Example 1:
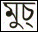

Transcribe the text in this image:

মুচ্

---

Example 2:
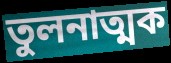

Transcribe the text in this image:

তুলনাত্মক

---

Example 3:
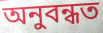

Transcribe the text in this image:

অনুবন্ধত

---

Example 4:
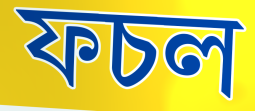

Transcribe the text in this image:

ফচল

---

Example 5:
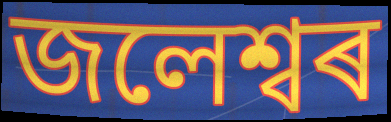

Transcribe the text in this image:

জলেশ্বৰ